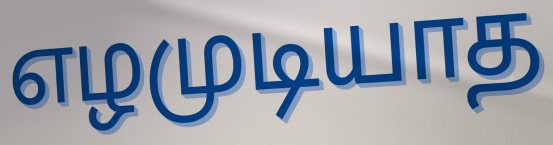
எழமுடியாத